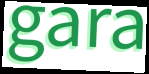
gara